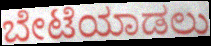
ಬೇಟೆಯಾಡಲು